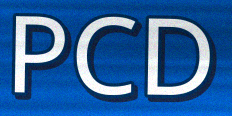
PCD